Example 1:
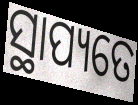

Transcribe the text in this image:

ସ୍ଥାପ୍ୟତେ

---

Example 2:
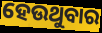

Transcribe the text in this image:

ହେଉଥୁବାର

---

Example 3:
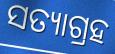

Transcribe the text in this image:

ସତ୍ୟାଗ୍ରହ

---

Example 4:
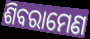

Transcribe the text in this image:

ଶିବରାମେଣ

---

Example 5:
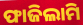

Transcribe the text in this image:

ଫାଜିଲାମି